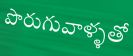
పొరుగువాళ్ళతో